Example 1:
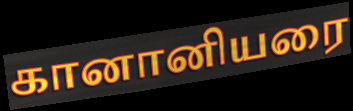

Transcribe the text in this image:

கானானியரை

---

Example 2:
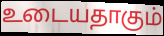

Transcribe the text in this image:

உடையதாகும்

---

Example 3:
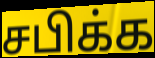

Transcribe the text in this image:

சபிக்க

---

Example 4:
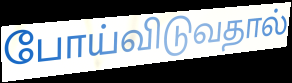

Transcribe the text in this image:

போய்விடுவதால்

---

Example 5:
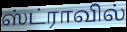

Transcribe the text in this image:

ஸ்ட்ராவில்